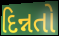
દિન્નતો